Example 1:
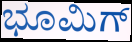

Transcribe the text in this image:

ಭೂಮಿಗ್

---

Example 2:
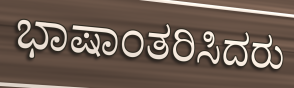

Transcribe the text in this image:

ಭಾಷಾಂತರಿಸಿದರು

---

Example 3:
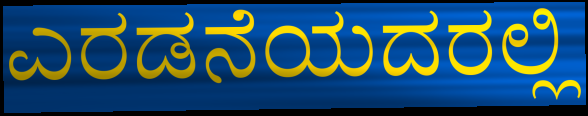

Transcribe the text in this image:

ಎರಡನೆಯದರಲ್ಲಿ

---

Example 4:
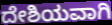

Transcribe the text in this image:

ದೇಶಿಯವಾಗಿ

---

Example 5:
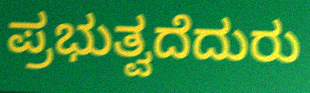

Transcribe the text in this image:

ಪ್ರಭುತ್ವದೆದುರು